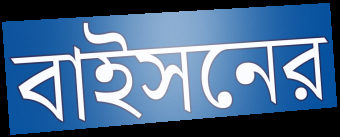
বাইসনের